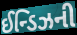
ઈન્ડિઝની